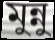
মুন্নু